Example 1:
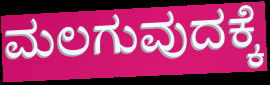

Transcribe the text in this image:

ಮಲಗುವುದಕ್ಕೆ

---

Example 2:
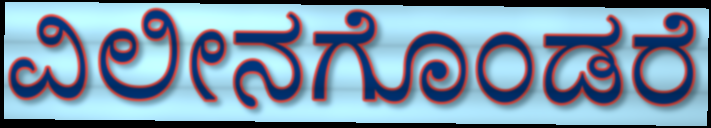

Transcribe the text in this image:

ವಿಲೀನಗೊಂಡರೆ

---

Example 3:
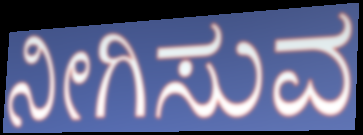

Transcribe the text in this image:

ನೀಗಿಸುವ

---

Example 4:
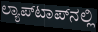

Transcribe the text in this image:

ಲ್ಯಾಪ್‌ಟಾಪ್‌ನಲ್ಲಿ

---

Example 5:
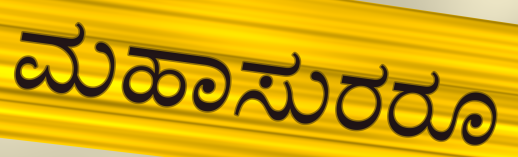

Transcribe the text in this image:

ಮಹಾಸುರರೂ